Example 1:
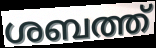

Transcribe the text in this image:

ശബത്ത്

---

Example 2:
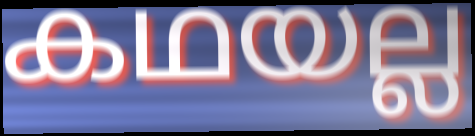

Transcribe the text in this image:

കഥയല്ല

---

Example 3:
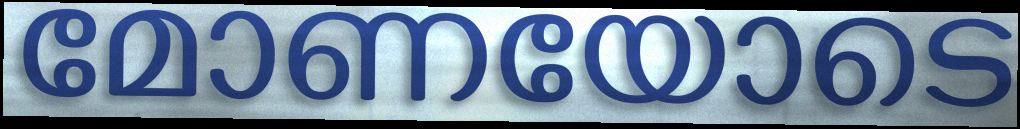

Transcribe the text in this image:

മോണയോടെ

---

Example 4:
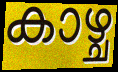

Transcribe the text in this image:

കാഴ്ച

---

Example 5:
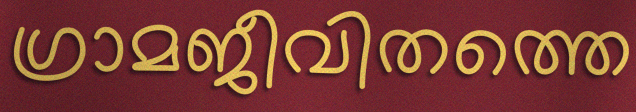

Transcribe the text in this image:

ഗ്രാമജീവിതത്തെ